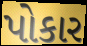
પોકાર